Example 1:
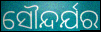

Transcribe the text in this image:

ସୌନ୍ଦର୍ଯର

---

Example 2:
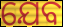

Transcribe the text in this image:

ଯେବ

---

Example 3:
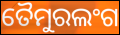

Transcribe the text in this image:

ତୈମୁରଲଂଗ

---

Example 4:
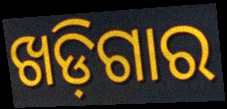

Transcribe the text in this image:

ଖଡ଼ିଗାର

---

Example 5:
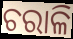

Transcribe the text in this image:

ଚରାଳି